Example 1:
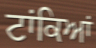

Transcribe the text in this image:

ਟਾਂਕਿਆਂ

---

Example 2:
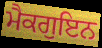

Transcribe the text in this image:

ਮੈਕਗੁਇਨ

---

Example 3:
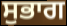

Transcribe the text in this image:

ਸੁਭਾਗ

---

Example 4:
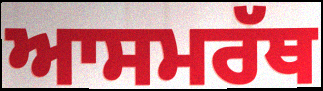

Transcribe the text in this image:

ਆਸਮਰੱਥ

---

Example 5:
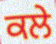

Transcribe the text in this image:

ਕਲੇ